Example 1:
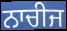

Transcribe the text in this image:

ਨਾਚੀਜ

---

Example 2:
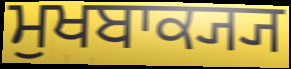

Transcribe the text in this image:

ਮੁਖਬਾਕ੍ਯ੍ਯ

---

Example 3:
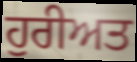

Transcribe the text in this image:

ਹੁਰੀਅਤ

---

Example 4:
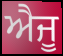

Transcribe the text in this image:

ਐਜੂ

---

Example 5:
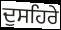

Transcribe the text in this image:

ਦੁਸਹਿਰੇ